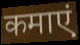
कमाएं